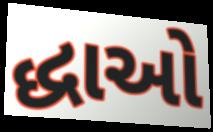
દ્ધાઓ